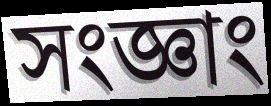
সংজ্ঞাং